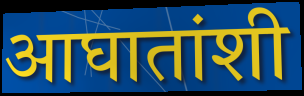
आघातांशी